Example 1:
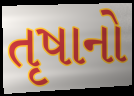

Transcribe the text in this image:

તૃષાનો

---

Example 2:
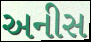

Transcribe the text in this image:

અનીસ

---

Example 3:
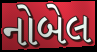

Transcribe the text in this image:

નોબેલ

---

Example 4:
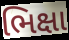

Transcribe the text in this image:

ભિક્ષા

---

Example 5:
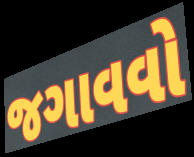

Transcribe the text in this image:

જગાવવો